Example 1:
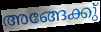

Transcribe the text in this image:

അങ്ങേക്കു്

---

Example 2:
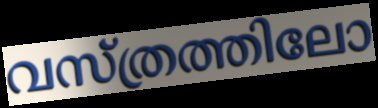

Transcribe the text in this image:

വസ്ത്രത്തിലോ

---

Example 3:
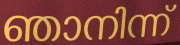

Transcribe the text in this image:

ഞാനിന്ന്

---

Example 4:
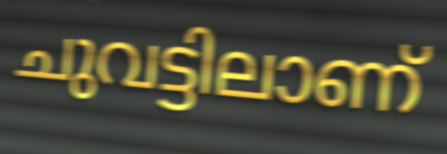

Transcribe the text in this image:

ചുവട്ടിലാണ്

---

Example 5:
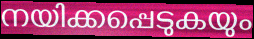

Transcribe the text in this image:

നയിക്കപ്പെടുകയും